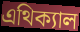
এথিক্যাল